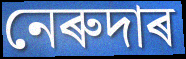
নেৰুদাৰ